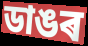
ডাঙৰ